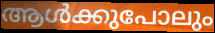
ആൾക്കുപോലും